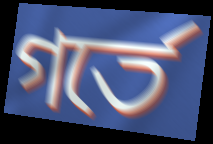
গর্তে